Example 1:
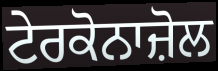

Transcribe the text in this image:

ਟੇਰਕੋਨਾਜ਼ੋਲ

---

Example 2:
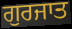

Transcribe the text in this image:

ਗੁਰਜਾਤ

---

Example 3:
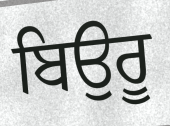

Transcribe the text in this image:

ਬਿਉਰੂ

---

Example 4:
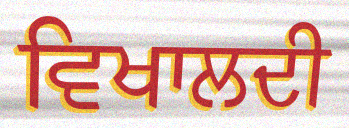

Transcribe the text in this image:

ਵਿਖਾਲਦੀ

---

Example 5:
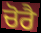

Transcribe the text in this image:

ਚੋਰੈ